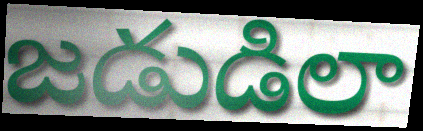
జడుడిలా